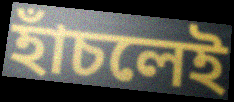
হাঁচলেই